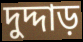
দুদ্দাড়